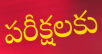
పరీక్షలకు